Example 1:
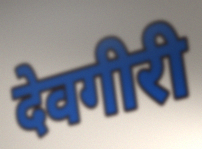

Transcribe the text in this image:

देवगीरी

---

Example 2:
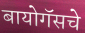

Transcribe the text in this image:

बायोगॅसचे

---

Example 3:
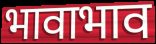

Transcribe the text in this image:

भावाभाव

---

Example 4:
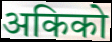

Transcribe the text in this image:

अकिको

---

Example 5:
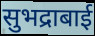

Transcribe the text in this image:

सुभद्राबाई